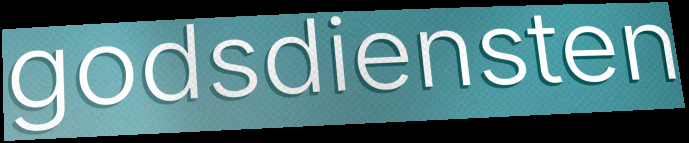
godsdiensten